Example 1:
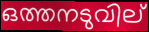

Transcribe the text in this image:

ഒത്തനടുവില്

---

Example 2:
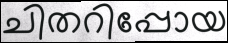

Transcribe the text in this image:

ചിതറിപ്പോയ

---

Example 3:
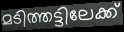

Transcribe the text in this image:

മടിത്തട്ടിലേക്ക്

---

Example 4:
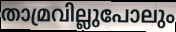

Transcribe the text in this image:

താമ്രവില്ലുപോലും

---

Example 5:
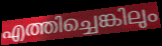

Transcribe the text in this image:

എത്തിച്ചെങ്കിലും